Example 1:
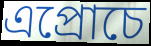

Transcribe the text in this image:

এপ্রোচে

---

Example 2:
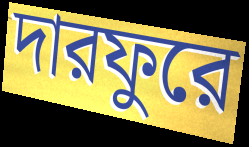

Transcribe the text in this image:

দারফুরে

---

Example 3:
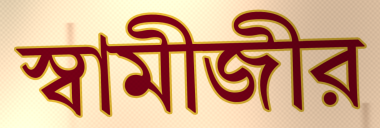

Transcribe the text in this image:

স্বামীজীর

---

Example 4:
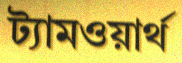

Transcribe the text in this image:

ট্যামওয়ার্থ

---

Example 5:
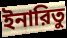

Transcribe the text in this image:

ইনারিতু